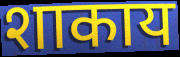
शाकाय